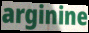
arginine